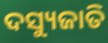
ଦସ୍ୟୁଜାତି